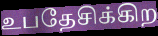
உபதேசிக்கிற